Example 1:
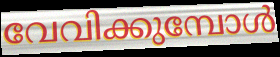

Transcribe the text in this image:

വേവിക്കുമ്പോൾ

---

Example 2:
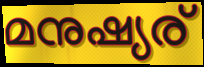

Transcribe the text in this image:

മനുഷ്യര്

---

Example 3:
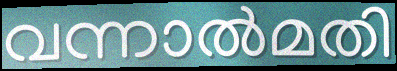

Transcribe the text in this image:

വന്നാൽമതി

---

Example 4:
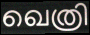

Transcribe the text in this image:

ഖെത്രി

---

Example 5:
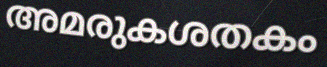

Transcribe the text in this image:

അമരുകശതകം